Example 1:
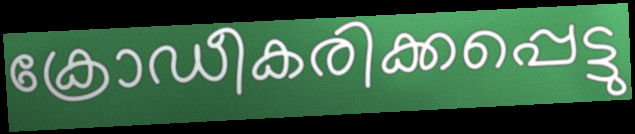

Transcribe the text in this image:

ക്രോഡീകരിക്കപ്പെട്ടു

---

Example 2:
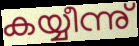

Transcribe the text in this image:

കയ്യീന്നു്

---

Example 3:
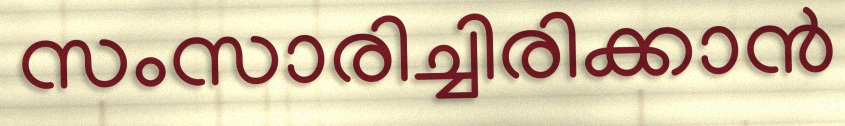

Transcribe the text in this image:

സംസാരിച്ചിരിക്കാൻ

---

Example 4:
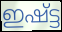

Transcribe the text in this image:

ഇഷ്ട്ട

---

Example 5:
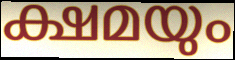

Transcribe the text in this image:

ക്ഷമയും